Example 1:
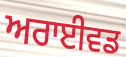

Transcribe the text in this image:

ਅਰਾਈਵਡ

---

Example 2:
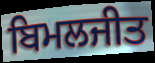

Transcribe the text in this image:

ਬਿਮਲਜੀਤ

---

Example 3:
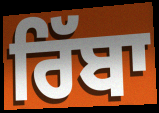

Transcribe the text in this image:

ਰਿੱਬਾ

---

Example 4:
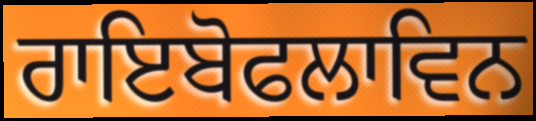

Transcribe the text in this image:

ਰਾਇਬੋਫਲਾਵਿਨ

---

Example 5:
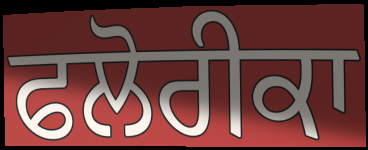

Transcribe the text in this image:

ਫਲੋਰੀਕਾ